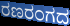
ರಣರಂಗದ